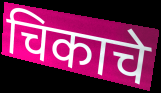
चिकाचे